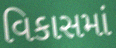
વિકાસમાં